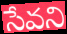
సేవని